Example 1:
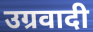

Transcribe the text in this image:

उग्रवादी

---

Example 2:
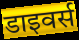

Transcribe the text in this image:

डाइवर्स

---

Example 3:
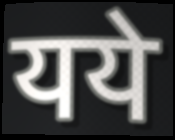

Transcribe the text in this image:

यये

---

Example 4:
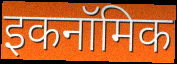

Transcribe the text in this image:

इकनॉमिक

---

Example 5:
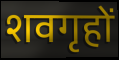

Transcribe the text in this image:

शवगृहों